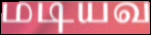
மடியவ